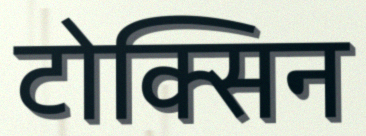
टोक्सिन